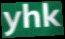
yhk